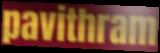
pavithram